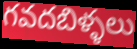
గవదబిళ్ళలు